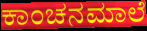
ಕಾಂಚನಮಾಲೆ